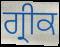
ਗ੍ਰੀਕ